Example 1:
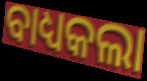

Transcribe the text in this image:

ବାଧ୍ୟକଲା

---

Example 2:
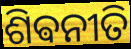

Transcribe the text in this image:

ଶିଵନୀତି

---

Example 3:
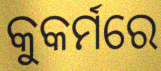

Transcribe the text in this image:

କୁକର୍ମରେ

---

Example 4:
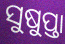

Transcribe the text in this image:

ସୁଷୁପ୍ତା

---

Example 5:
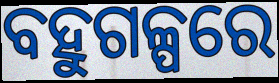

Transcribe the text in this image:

ବହୁଗଳ୍ପରେ